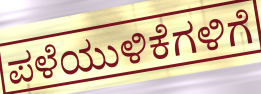
ಪಳೆಯುಳಿಕೆಗಳಿಗೆ